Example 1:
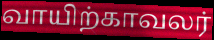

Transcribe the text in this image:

வாயிற்காவலர்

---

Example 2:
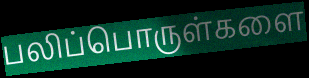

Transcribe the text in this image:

பலிப்பொருள்களை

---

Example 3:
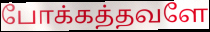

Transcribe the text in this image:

போக்கத்தவளே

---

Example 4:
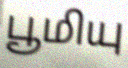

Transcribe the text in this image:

பூமியு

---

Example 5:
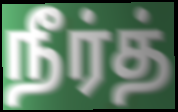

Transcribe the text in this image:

நீர்த்